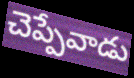
చెప్పేవాడు